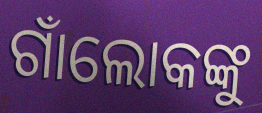
ଗାଁଲୋକଙ୍କୁ